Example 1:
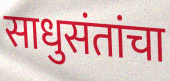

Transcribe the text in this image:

साधुसंतांचा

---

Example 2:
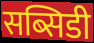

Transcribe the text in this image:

सब्सिडी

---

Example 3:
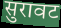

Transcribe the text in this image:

सुरावट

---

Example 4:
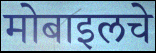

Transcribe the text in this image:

मोबाइलचे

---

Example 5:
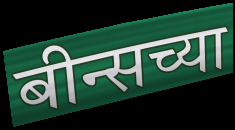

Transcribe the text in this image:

बीन्सच्या